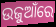
ଉଜୁଆଁରେ